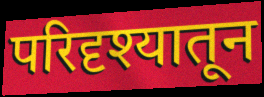
परिदृश्यातून